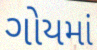
ગોયમાં